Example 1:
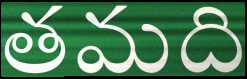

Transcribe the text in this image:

తమది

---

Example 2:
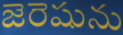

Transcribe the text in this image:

జెరెషును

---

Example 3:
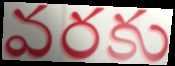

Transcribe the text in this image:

వరకు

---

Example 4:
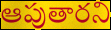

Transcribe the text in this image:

ఆపుతారని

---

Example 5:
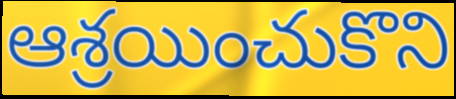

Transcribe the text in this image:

ఆశ్రయించుకొని